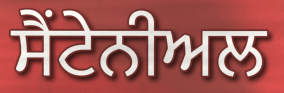
ਸੈਂਟੇਨੀਅਲ